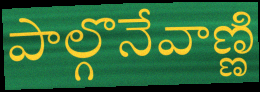
పాల్గొనేవాణ్ణి